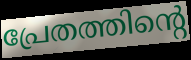
പ്രേതത്തിന്റെ